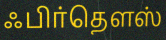
ஃபிர்தௌஸ்